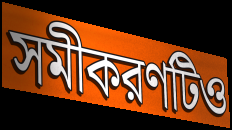
সমীকরণটিও